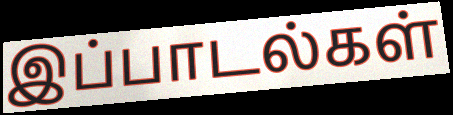
இப்பாடல்கள்